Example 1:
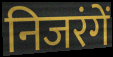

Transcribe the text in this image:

निजरंगें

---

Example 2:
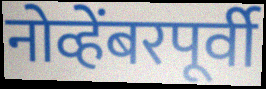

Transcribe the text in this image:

नोव्हेंबरपूर्वी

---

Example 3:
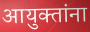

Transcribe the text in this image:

आयुक्‍तांना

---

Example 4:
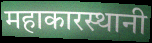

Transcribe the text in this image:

महाकारस्थानी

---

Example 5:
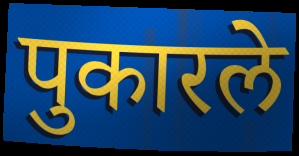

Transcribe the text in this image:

पुकारले